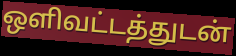
ஒளிவட்டத்துடன்